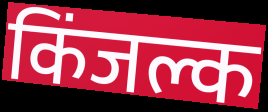
किंजल्क